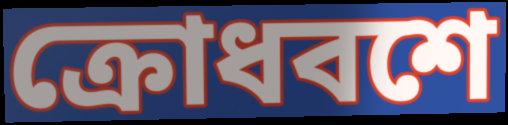
ক্রোধবশে